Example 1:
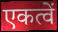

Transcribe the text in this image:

एकत्वें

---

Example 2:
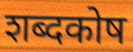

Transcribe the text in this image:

शब्दकोष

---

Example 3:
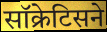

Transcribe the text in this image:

सॉक्रेटिसने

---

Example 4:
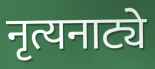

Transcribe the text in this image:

नृत्यनाट्ये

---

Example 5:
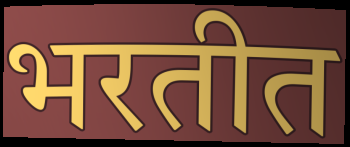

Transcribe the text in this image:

भरतीत